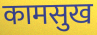
कामसुख